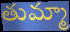
తుమ్మా